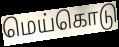
மெய்கொடு